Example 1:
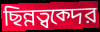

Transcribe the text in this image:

ছিন্নত্বক্দের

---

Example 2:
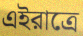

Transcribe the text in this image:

এইরাত্রে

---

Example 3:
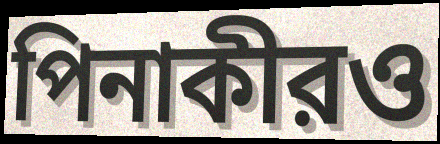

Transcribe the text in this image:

পিনাকীরও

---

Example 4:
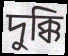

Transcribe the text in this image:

দুক্কি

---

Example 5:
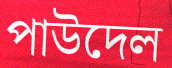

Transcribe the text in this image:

পাউদেল